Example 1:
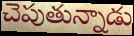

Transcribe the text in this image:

చెపుతున్నాడు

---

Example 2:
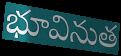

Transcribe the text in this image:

భూవినుత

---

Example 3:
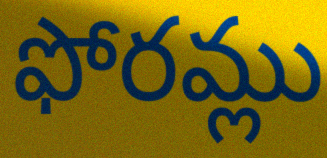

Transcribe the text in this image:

ఫోరమ్లు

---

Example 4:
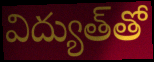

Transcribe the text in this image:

విద్యుత్‌తో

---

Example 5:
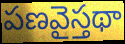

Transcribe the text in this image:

పణవైస్తథా